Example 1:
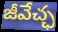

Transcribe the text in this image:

జీవేచ్ఛ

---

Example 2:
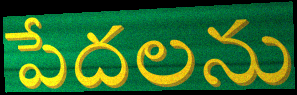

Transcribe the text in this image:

పేదలను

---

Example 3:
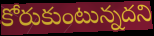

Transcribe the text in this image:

కోరుకుంటున్నదని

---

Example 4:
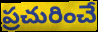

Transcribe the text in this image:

ప్రచురించే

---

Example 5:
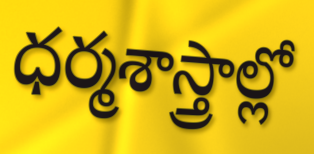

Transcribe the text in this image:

ధర్మశాస్త్రాల్లో